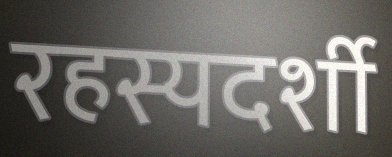
रहस्यदर्शी